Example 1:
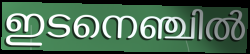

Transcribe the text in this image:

ഇടനെഞ്ചിൽ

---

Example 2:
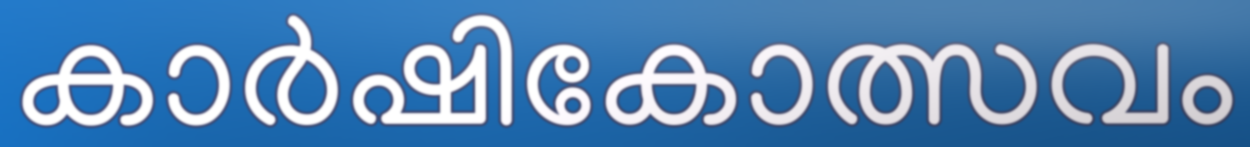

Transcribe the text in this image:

കാർഷികോത്സവം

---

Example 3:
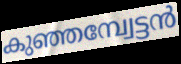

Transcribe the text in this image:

കുഞ്ഞമ്പ്വേട്ടൻ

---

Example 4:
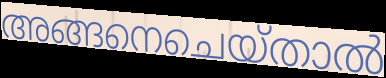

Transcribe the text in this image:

അങ്ങനെചെയ്താൽ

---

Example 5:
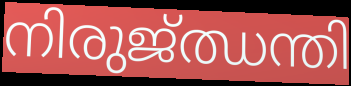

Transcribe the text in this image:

നിരുജ്ഝന്തി